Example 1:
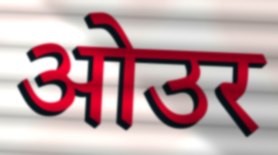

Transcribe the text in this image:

ओउर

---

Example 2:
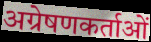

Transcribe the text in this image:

अग्रेषणकर्ताओं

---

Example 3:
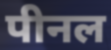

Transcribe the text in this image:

पीनल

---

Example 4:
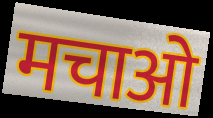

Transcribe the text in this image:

मचाओ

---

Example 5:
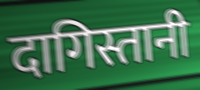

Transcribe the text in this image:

दागिस्तानी